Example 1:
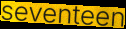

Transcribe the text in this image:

seventeen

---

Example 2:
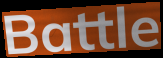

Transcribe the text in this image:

Battle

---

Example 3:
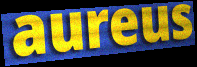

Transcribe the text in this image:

aureus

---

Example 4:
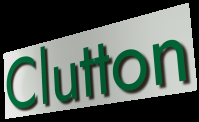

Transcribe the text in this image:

Clutton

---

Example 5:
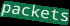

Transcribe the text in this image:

packets